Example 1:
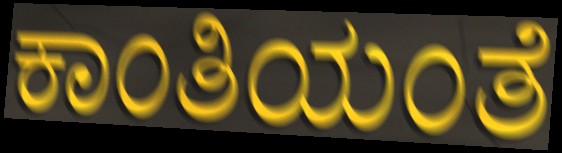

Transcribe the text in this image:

ಕಾಂತಿಯಂತೆ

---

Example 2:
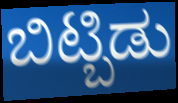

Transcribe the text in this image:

ಬಿಟ್ಬಿಡು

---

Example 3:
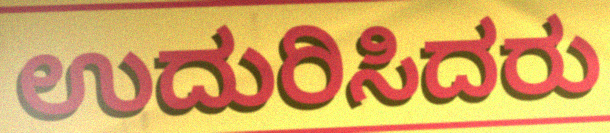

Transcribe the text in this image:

ಉದುರಿಸಿದರು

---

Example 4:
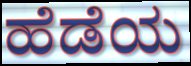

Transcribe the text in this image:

ಹೆಡೆಯ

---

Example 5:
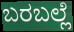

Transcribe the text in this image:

ಬರಬಲ್ಲೆ